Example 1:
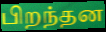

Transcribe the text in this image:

பிறந்தன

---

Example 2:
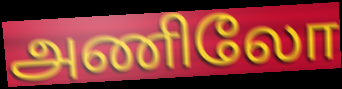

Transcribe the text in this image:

அணிலோ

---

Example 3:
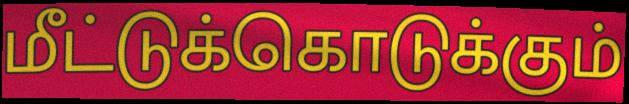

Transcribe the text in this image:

மீட்டுக்கொடுக்கும்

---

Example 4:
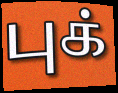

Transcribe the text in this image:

புக்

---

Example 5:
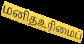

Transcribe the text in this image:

மனிதஉரிமைப்